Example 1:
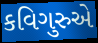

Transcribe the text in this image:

કવિગુરુએ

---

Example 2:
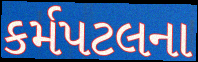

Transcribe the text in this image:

કર્મપટલના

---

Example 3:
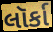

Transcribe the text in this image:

લૉર્કા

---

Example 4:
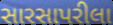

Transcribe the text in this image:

સારસાપરીલા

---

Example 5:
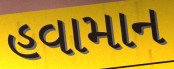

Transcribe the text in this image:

હવામાન